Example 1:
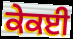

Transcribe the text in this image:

ਕੇਕਈ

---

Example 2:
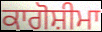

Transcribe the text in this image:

ਕਾਗੋਸ਼ੀਮਾ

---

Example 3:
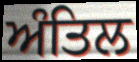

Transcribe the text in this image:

ਅੰਤਿਲ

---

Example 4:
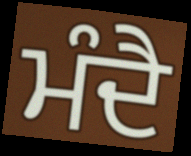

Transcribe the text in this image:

ਮੰਦੈ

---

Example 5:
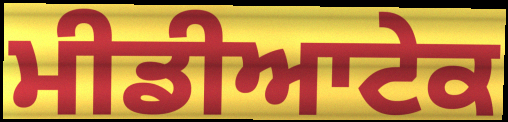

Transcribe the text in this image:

ਮੀਡੀਆਟੇਕ